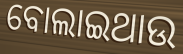
ବୋଲାଇଥାଉ